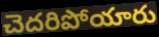
చెదరిపోయారు